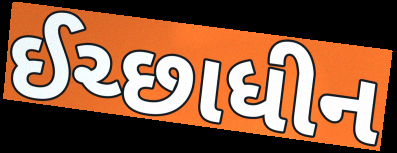
ઈચ્છાધીન